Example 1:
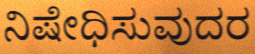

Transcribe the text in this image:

ನಿಷೇಧಿಸುವುದರ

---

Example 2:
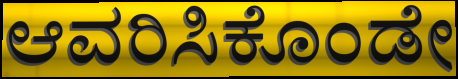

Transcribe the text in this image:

ಆವರಿಸಿಕೊಂಡೇ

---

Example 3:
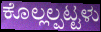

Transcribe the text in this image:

ಕೊಲ್ಲಲ್ಪಟ್ಟಳು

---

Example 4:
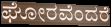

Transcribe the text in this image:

ಘೋರವೆಂದರೆ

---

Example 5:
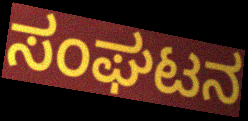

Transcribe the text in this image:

ಸಂಘಟನ